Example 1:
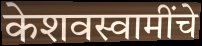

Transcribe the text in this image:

केशवस्वामींचे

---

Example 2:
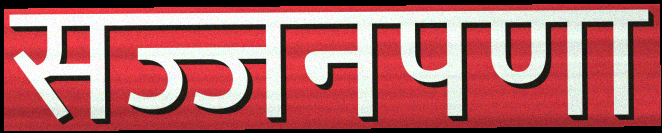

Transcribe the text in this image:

सज्जनपणा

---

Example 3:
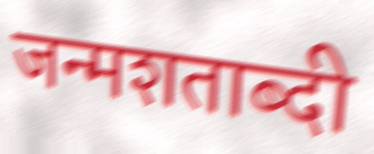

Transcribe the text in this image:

जन्मशताब्दी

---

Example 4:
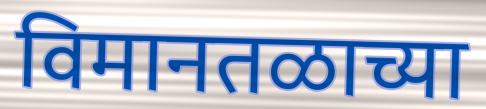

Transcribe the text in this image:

विमानतळाच्या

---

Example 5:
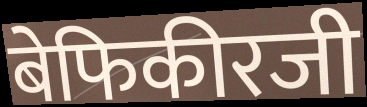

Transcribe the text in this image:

बेफिकीरजी